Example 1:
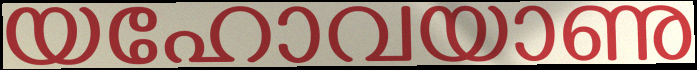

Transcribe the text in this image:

യഹോവയാണു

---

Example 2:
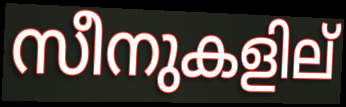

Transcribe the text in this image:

സീനുകളില്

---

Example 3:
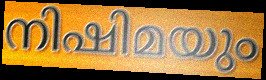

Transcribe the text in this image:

നിഷിമയും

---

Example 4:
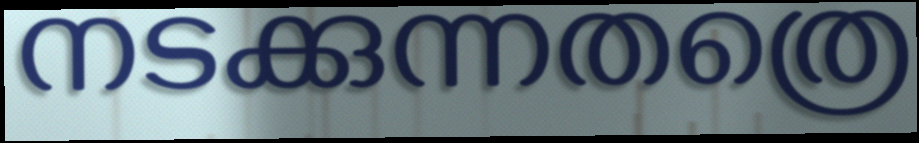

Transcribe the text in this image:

നടക്കുന്നതത്രെ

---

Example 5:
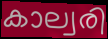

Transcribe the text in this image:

കാല്വരി